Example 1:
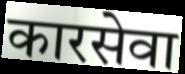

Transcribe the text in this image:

कारसेवा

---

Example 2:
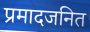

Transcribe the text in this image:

प्रमादजनित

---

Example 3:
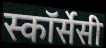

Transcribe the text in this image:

स्कॉर्सेसी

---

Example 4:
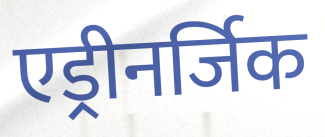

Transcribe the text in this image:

एड्रीनर्जिक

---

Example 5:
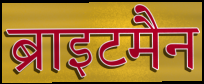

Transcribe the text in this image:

ब्राइटमैन